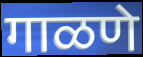
गाळणे